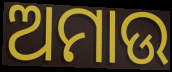
ଅମାଉ